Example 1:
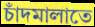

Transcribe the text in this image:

চাঁদমালাতে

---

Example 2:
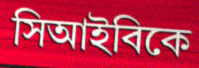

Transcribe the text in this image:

সিআইবিকে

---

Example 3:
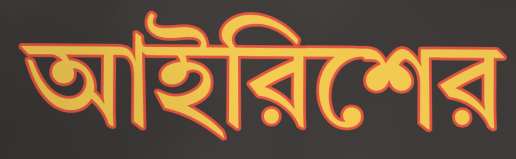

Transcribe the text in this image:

আইরিশের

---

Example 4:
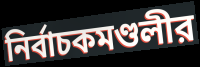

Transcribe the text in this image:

নির্বাচকমণ্ডলীর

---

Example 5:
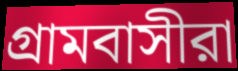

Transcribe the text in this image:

গ্রামবাসীরা